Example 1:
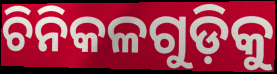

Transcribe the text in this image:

ଚିନିକଳଗୁଡ଼ିକୁ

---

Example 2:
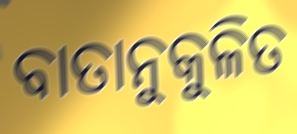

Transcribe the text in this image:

ବାତାନୁକୁଳିତ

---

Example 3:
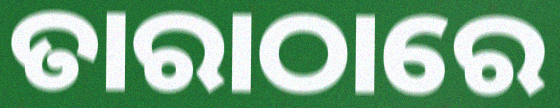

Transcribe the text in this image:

ତାରାଠାରେ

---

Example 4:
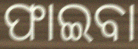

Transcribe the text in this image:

ଫାଇବା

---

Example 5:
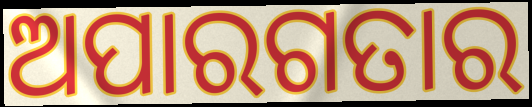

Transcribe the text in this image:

ଅପାରଗତାର